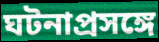
ঘটনাপ্রসঙ্গে